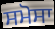
ਸਮੋਸਾ